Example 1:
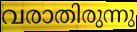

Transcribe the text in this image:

വരാതിരുന്നു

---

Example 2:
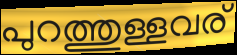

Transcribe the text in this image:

പുറത്തുള്ളവര്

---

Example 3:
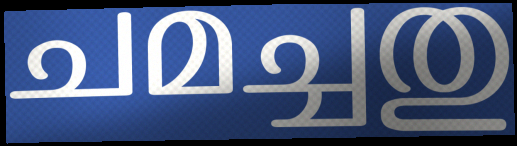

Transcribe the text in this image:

ചമച്ചതു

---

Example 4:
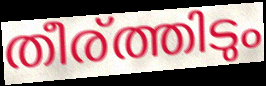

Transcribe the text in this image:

തീര്ത്തിടും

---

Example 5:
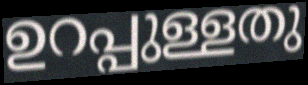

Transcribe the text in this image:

ഉറപ്പുള്ളതു